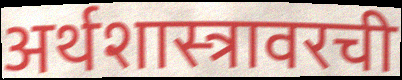
अर्थशास्त्रावरची